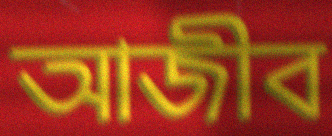
আজীব